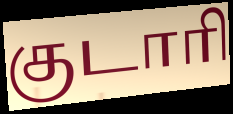
குடாரி